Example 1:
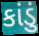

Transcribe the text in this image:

કાંડું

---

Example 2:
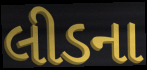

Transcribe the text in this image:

લીડના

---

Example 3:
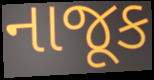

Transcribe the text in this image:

નાજૂક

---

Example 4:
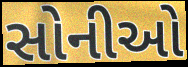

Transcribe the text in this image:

સોનીઓ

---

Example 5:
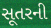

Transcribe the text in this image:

સૂતરની